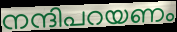
നന്ദിപറയണം